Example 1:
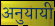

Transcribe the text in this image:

अनुयायी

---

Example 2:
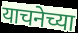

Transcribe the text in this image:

याचनेच्या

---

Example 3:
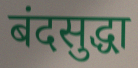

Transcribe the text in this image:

बंदसुद्धा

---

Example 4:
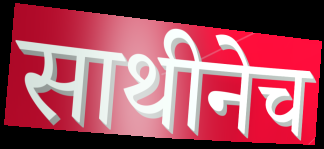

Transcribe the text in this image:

साथीनेच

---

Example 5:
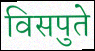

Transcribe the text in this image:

विसपुते